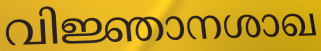
വിജ്ഞാനശാഖ